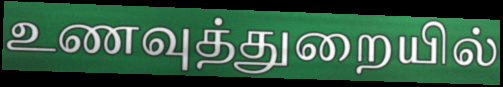
உணவுத்துறையில்